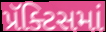
પ્રૅક્ટિસમાં